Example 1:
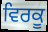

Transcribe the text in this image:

ਵਿਰਕੂ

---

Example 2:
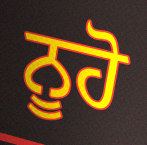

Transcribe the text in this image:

ਨੂਹੋ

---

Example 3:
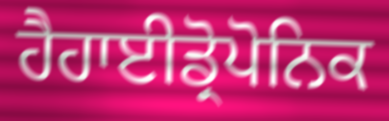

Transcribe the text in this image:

ਹੈਹਾਈਡ੍ਰੋਪੋਨਿਕ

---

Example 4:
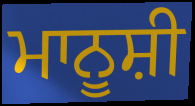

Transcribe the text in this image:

ਮਾਨੂਸ਼ੀ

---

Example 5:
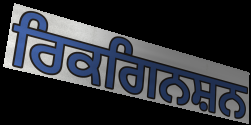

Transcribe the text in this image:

ਰਿਕਗਿਨਸ਼ਨ